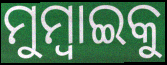
ମୁମ୍ବାଇକୁ